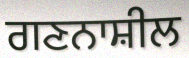
ਗਣਨਾਸ਼ੀਲ